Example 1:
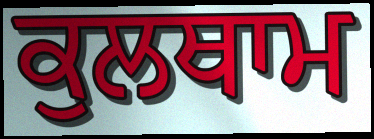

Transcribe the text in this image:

ਕੁਲਥਾਮ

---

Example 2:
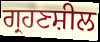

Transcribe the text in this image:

ਗ੍ਰਹਣਸ਼ੀਲ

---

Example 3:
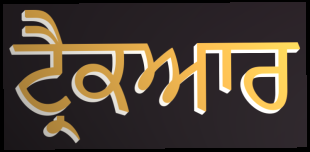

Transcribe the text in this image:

ਟ੍ਰੈਕਆਰ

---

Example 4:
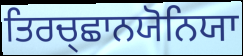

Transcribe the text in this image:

ਤਿਰਚ੍ਛਾਨਯੋਨਿਯਾ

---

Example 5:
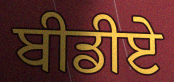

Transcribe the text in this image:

ਬੀਡੀਏ